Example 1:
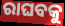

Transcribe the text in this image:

ରାଘବକୁ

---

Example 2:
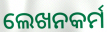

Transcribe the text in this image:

ଲେଖନକର୍ମ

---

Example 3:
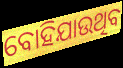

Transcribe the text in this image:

ବୋହିଯାଉଥିବ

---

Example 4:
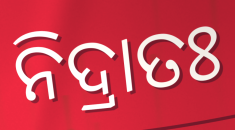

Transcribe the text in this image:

ନିଦ୍ରାତଃ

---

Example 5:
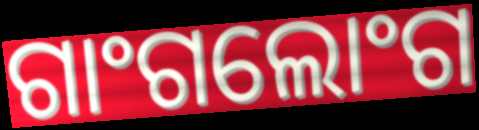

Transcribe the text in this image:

ଗାଂଗଲୋଂଗ